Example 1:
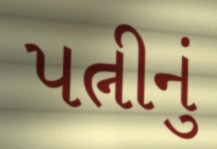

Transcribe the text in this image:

પત્નીનું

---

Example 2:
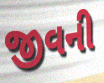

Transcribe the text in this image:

જીવની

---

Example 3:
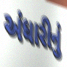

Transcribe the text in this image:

અંધારીનું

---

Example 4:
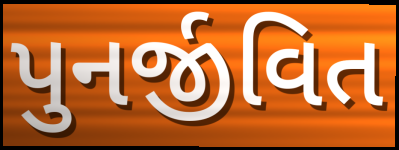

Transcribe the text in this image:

પુનર્જીવિત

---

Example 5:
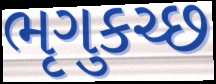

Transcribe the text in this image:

ભૃગુકચ્છ